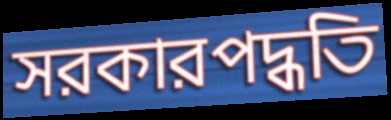
সরকারপদ্ধতি